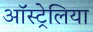
ऑस्ट्रेलिया